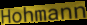
Hohmann